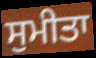
ਸੁਮੀਤਾ